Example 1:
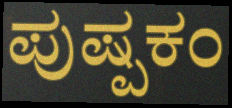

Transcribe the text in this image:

ಪುಷ್ಪಕಂ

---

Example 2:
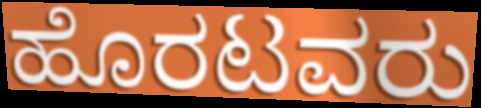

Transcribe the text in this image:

ಹೊರಟವರು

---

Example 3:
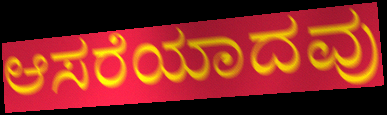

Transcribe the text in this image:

ಆಸರೆಯಾದವು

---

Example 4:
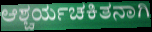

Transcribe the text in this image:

ಆಶ್ಚರ್ಯಚಕಿತನಾಗಿ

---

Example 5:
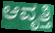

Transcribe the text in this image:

ಆವೃತ್ತಿ